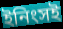
ইনিংসই